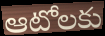
ఆటోలకు